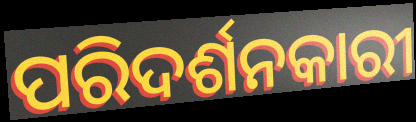
ପରିଦର୍ଶନକାରୀ